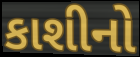
કાશીનો